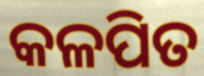
କଳପିତ